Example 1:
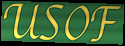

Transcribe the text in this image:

USOF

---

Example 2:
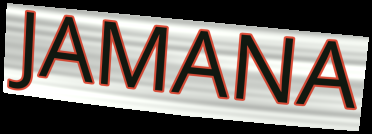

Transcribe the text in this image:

JAMANA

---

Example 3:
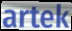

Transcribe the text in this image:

artek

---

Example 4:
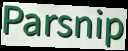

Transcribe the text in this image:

Parsnip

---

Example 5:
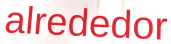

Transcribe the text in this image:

alrededor